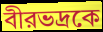
বীরভদ্রকে